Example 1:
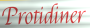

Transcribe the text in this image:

Protidiner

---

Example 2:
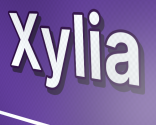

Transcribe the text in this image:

Xylia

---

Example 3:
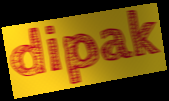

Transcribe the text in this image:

dipak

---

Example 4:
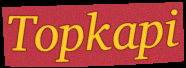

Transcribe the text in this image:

Topkapi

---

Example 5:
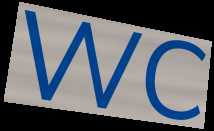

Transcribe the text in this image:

WC